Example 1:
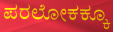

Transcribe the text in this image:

ಪರಲೋಕಕ್ಕೂ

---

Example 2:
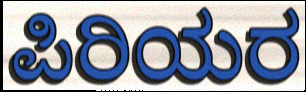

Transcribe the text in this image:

ಪಿರಿಯರ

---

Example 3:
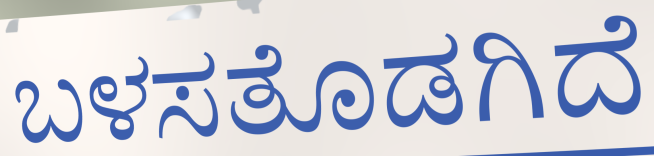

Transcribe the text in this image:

ಬಳಸತೊಡಗಿದೆ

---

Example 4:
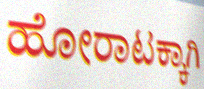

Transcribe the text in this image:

ಹೋರಾಟಕ್ಕಾಗಿ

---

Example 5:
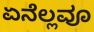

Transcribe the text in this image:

ಏನೆಲ್ಲವೂ